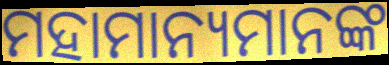
ମହାମାନ୍ୟମାନଙ୍କ